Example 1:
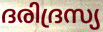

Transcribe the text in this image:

ദരിദ്രസ്യ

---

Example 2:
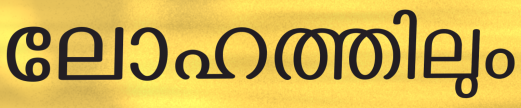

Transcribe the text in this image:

ലോഹത്തിലും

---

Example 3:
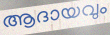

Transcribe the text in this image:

ആദായവും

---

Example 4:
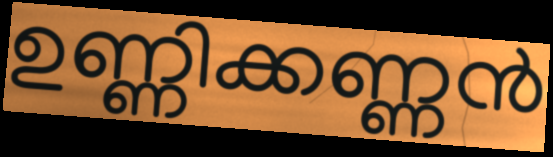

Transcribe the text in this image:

ഉണ്ണിക്കണ്ണൻ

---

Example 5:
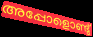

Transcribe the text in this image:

അപ്പോളൊണ്ടു്